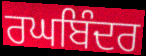
ਰਘਬਿੰਦਰ